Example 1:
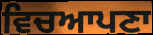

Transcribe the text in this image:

ਵਿਚਆਪਣਾ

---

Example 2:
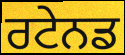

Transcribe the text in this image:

ਰਟੇਨਡ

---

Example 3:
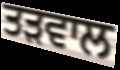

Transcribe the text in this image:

ਤੜਵਾਲ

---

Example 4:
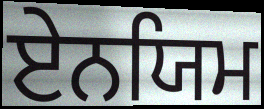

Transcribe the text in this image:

ਏਨਯਿਮ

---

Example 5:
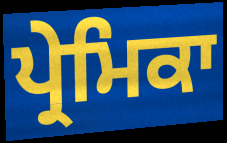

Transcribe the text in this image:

ਪ੍ਰੇਮਿਕਾ